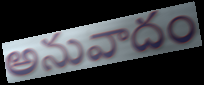
అనువాదం